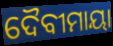
ଦୈବୀମାୟା